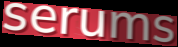
serums